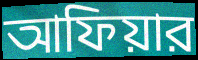
আফিয়ার